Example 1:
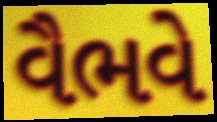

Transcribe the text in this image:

વૈભવે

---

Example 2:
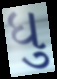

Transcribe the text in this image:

ધુ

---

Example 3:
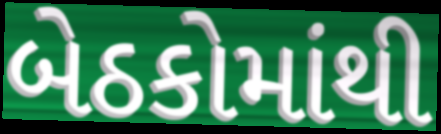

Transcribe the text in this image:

બેઠકોમાંથી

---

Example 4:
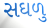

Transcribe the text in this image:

સઘળુ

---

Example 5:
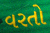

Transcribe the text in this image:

વરતો